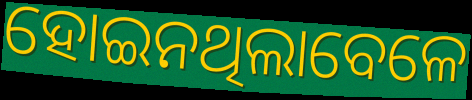
ହୋଇନଥିଲାବେଳେ